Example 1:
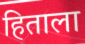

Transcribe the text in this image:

हिताला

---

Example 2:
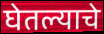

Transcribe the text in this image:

घेतल्याचे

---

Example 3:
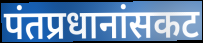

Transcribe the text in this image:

पंतप्रधानांसकट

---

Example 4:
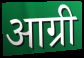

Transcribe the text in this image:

आग्री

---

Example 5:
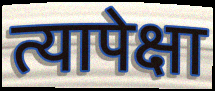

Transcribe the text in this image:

त्यापेक्षा